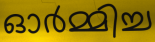
ഓർമ്മിച്ച